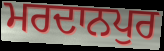
ਮਰਦਾਨਪੁਰ